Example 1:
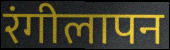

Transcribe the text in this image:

रंगीलापन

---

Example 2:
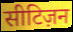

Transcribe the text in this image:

सीटिज़न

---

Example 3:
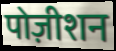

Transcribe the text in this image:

पोज़ीशन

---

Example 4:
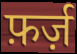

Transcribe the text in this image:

फ़र्ज़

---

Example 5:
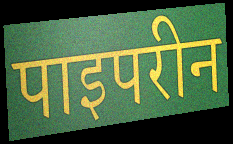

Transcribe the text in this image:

पाइपरीन